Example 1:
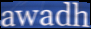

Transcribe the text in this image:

awadh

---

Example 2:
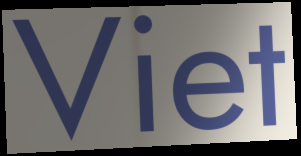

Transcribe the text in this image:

Viet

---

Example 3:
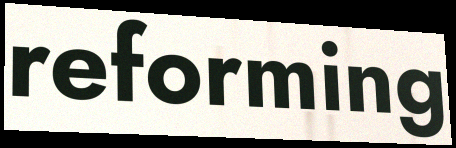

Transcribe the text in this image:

reforming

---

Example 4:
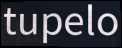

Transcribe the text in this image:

tupelo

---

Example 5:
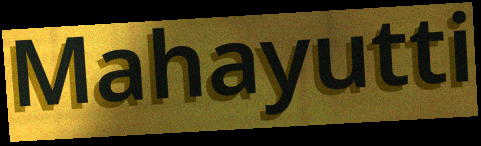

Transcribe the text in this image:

Mahayutti